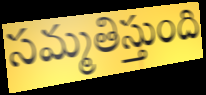
సమ్మతిస్తుంది